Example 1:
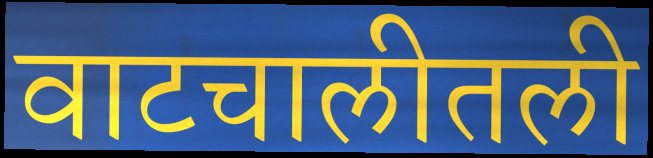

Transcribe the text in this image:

वाटचालीतली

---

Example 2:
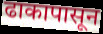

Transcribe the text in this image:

ढाकापासून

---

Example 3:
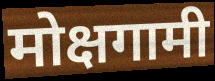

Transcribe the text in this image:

मोक्षगामी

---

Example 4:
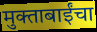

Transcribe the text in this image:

मुक्ताबाईंचा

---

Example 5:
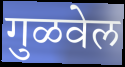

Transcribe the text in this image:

गुळवेल